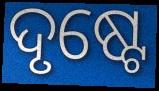
ଦୃଷ୍ଟେ